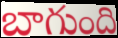
బాగుంది